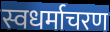
स्वधर्माचरण